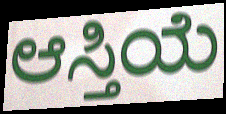
ಆಸ್ತಿಯೆ